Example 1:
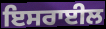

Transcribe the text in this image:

ਇਸਰਾਈਲ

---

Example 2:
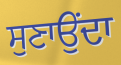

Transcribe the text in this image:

ਸੁਣਾਉਂਦਾ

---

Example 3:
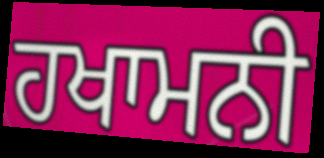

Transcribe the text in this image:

ਹਖਾਮਨੀ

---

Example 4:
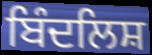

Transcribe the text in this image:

ਬਿੰਦਲਿਸ਼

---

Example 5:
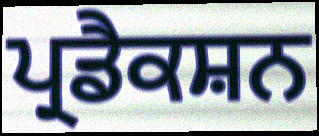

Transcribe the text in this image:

ਪ੍ਰਡੈਕਸ਼ਨ